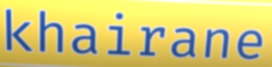
khairane